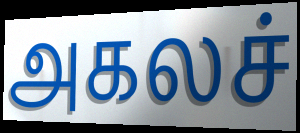
அகலச்